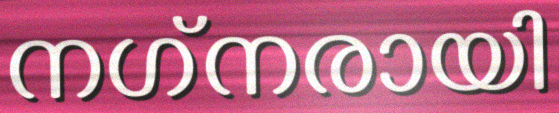
നഗ്‌നരായി